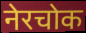
नेरचोक